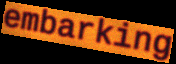
embarking